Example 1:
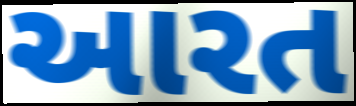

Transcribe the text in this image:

આરત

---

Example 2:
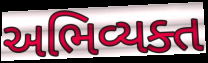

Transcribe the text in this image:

અભિવ્યક્ત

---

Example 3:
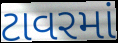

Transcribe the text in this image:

ટાવરમાં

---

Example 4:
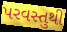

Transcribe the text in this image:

પરવસ્તુથી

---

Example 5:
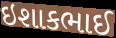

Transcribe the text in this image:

ઇશાકભાઈ